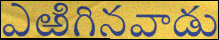
ఎఱిగినవాడు